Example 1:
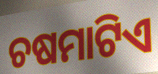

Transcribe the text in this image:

ଚଷମାଟିଏ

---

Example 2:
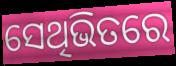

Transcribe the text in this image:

ସେଥିଭିତରେ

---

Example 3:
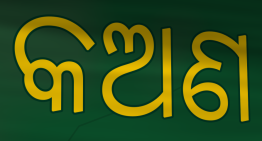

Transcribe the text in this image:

କଅଣ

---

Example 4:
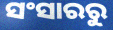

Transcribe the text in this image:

ସଂସାରରୁ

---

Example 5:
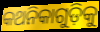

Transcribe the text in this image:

କଥନିକାଗୁଡ଼ିକୁ